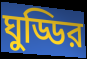
ঘুড্ডির